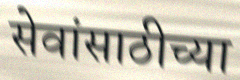
सेवांसाठीच्या